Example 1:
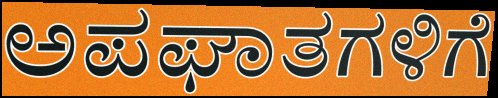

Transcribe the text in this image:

ಅಪಘಾತಗಳಿಗೆ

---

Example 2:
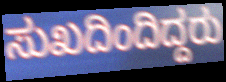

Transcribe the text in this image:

ಸುಖದಿಂದಿದ್ದರು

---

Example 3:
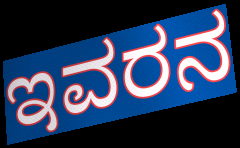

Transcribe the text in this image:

ಇವರನ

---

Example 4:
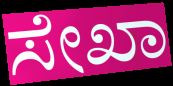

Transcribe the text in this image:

ಸೇಖಾ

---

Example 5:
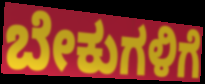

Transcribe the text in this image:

ಬೇಕುಗಳಿಗೆ